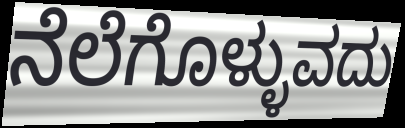
ನೆಲೆಗೊಳ್ಳುವದು